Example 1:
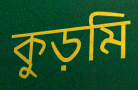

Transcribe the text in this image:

কুড়মি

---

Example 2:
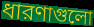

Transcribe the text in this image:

ধারণাগুলো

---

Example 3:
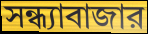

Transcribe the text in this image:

সন্ধ্যাবাজার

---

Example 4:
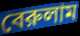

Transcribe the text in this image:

বেরুলাম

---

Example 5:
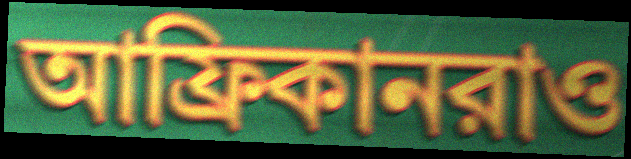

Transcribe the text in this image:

আফ্রিকানরাও